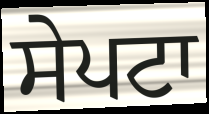
ਸੇਪਟਾ